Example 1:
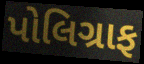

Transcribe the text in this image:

પોલિગ્રાફ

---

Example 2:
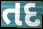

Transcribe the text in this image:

તદ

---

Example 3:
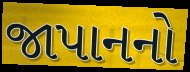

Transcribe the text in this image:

જાપાનનો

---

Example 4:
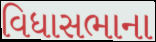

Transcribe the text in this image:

વિધાસભાના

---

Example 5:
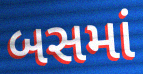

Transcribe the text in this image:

બસમાં